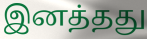
இனத்தது